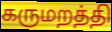
கருமறத்தி